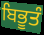
ਬਿਭੂਤੰ